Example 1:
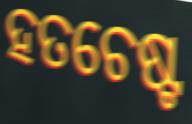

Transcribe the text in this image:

ହତଚେଷ୍ଟ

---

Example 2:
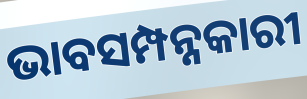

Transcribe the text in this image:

ଭାବସମ୍ପନ୍ନକାରୀ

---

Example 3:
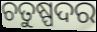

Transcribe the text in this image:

ଚତୁଷ୍ପଦର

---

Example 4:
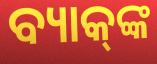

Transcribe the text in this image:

ବ୍ୟାକ୍‍ଙ୍କ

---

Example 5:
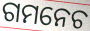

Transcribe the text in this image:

ଗମନେଚ